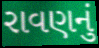
રાવણનું